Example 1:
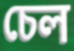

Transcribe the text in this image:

চেল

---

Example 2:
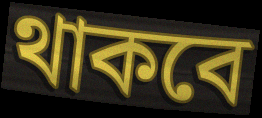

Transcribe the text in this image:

থাকবে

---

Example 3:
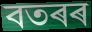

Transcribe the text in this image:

বতৰৰ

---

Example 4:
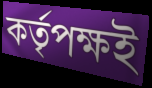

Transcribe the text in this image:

কৰ্তৃপক্ষই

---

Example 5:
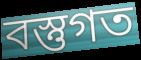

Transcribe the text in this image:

বস্তুগত